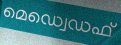
മെഡ്വെഡഫ്